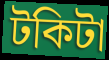
টকিটা